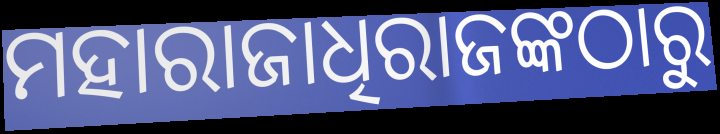
ମହାରାଜାଧିରାଜଙ୍କଠାରୁ